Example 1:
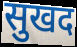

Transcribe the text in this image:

सुखद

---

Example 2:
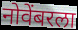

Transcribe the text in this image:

नोवेंबरला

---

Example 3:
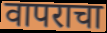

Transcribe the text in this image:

वापराचा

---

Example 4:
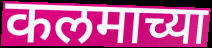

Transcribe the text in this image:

कलमाच्या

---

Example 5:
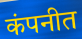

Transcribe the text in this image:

कंपनीत